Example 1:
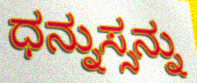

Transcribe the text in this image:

ಧನ್ನುಸ್ಸನ್ನು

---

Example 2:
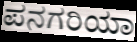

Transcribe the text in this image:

ಪನಗರಿಯಾ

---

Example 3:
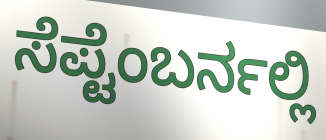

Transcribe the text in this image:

ಸೆಪ್ಟೆಂಬರ್ನಲ್ಲಿ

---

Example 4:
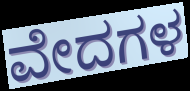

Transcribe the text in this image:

ವೇದಗಳ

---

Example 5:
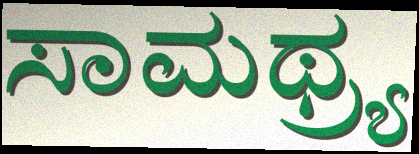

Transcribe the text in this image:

ಸಾಮಥ್ರ್ಯ